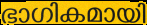
ഭാഗികമായി